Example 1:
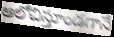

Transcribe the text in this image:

ఆలోచిస్తూండగానే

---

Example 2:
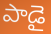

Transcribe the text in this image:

పాడై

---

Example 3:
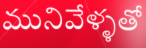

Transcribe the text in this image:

మునివేళ్ళతో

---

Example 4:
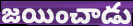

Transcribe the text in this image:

జయించాడు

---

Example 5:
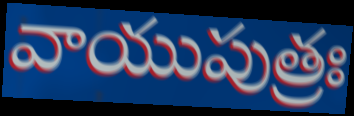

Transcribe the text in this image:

వాయుపుత్రః